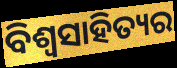
ବିଶ୍ୱସାହିତ୍ୟର